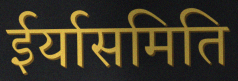
ईर्यासमिति